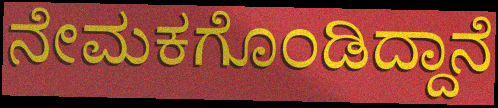
ನೇಮಕಗೊಂಡಿದ್ದಾನೆ